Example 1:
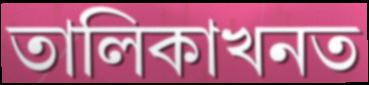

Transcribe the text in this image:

তালিকাখনত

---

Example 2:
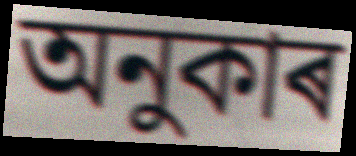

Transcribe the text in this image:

অনুকাৰ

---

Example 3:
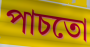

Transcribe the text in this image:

পাচতো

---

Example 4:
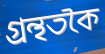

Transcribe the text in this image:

গ্ৰন্থতকৈ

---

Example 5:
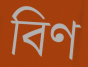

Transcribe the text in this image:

বিণ